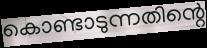
കൊണ്ടാടുന്നതിന്റെ